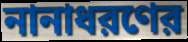
নানাধরণের